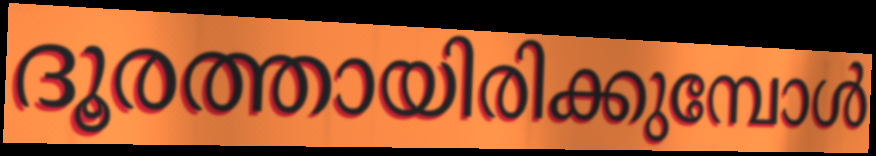
ദൂരത്തായിരിക്കുമ്പോൾ